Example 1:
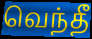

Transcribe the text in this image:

வெந்தீ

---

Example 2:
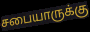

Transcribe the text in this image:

சபையாருக்கு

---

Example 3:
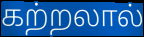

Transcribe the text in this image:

கற்றலால்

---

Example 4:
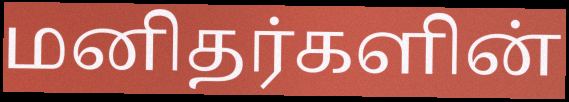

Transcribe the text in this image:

மனிதர்களின்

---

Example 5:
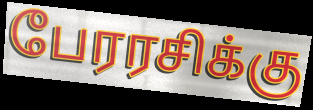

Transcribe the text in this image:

பேரரசிக்கு